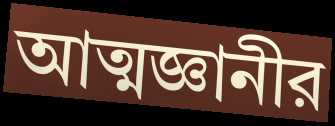
আত্মজ্ঞানীর